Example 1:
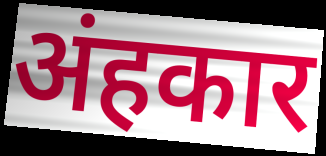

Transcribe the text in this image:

अंहकार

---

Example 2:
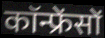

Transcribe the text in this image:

कॉन्फ्रेंसों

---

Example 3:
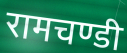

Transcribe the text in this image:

रामचण्डी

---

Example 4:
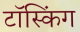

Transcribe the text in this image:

टॉस्किंग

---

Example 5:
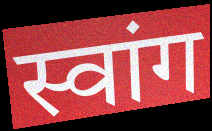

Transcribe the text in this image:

स्‍वांग